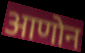
आणोन